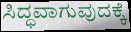
ಸಿದ್ಧವಾಗುವುದಕ್ಕೆ